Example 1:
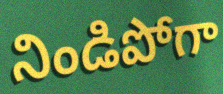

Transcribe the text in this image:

నిండిపోగా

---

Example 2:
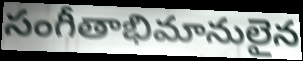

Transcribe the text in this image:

సంగీతాభిమానులైన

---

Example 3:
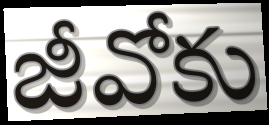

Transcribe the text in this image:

జీవోకు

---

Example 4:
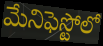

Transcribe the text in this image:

మేనిఫెస్టోలో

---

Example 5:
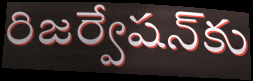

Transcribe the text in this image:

రిజర్వేషన్‌కు